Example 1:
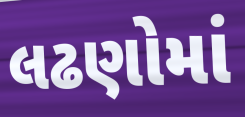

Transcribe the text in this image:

લઢણોમાં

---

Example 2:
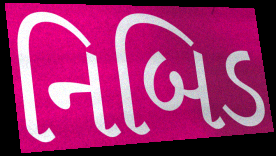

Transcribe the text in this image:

નિબિડ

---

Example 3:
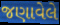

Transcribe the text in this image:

જણાવેલે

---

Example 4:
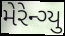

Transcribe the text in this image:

મેરેન્ગ્યુ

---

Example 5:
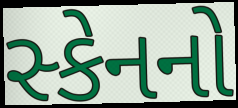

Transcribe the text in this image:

સ્કેનનો